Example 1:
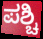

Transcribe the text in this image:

ಪಶ್ಚಿ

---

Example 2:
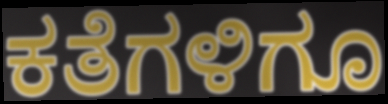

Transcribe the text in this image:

ಕತೆಗಳಿಗೂ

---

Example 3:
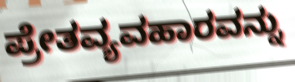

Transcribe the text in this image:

ಪ್ರೇತವ್ಯವಹಾರವನ್ನು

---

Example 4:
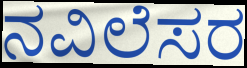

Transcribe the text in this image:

ನವಿಲೆಸರ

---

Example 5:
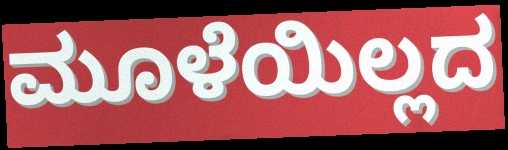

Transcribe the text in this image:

ಮೂಳೆಯಿಲ್ಲದ